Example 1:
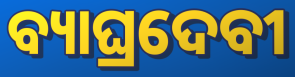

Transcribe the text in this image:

ବ୍ୟାଘ୍ରଦେବୀ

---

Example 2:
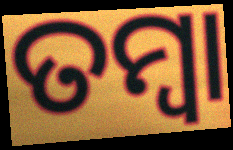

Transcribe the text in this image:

ତମ୍ୱା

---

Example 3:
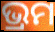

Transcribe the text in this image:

ଭ୍ରମ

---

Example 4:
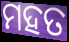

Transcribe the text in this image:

ମହତ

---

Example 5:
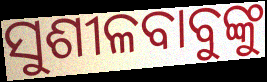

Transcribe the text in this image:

ସୁଶୀଳବାବୁଙ୍କୁ